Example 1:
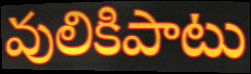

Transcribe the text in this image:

వులికిపాటు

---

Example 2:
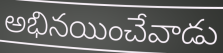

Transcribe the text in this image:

అభినయించేవాడు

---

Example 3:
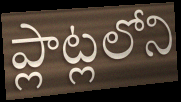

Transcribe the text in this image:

ప్లాట్లలోని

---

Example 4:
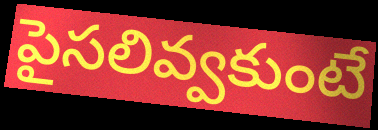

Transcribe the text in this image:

పైసలివ్వకుంటే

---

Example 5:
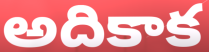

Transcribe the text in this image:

అదికాక